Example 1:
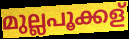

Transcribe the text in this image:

മുല്ലപൂക്കള്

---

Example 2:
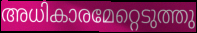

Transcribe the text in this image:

അധികാരമേറ്റെടുത്തു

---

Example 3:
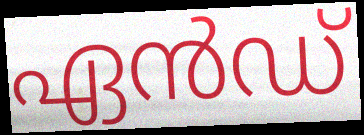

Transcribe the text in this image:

ഏൻഡ്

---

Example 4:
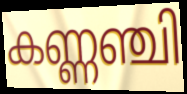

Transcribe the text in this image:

കണ്ണഞ്ചി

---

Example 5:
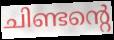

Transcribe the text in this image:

ചിണ്ടന്റെ